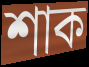
শাক